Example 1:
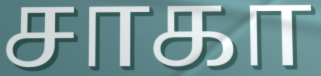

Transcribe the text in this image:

சாகா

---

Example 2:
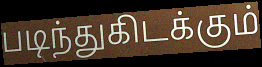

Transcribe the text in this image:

படிந்துகிடக்கும்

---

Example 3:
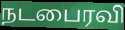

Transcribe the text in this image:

நடபைரவி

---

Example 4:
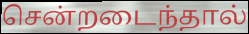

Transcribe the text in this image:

சென்றடைந்தால்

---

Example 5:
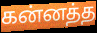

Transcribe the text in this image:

கன்னத்த